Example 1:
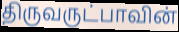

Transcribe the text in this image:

திருவருட்பாவின்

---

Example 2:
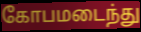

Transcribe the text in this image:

கோபமடைந்து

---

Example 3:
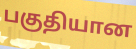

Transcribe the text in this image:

பகுதியான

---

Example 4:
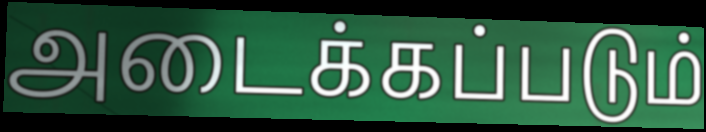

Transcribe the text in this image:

அடைக்கப்படும்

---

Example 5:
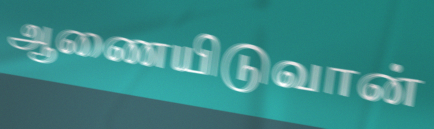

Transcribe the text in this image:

ஆணையிடுவான்